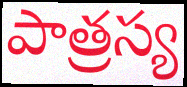
పాత్రస్య